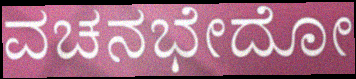
ವಚನಭೇದೋ